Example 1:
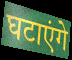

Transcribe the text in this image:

घटाएंगे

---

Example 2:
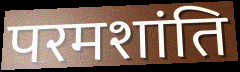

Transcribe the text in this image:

परमशांति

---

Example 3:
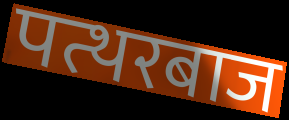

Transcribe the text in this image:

पत्थरबाज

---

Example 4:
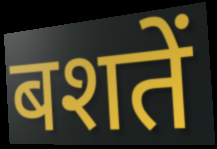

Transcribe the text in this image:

बशतें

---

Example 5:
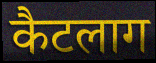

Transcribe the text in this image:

कैटलाग